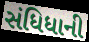
સંધિધાની